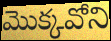
మొక్కవోని